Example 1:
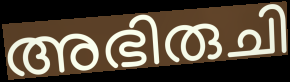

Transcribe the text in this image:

അഭിരുചി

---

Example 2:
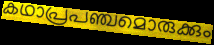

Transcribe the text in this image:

കഥാപ്രപഞ്ചമൊരുക്കും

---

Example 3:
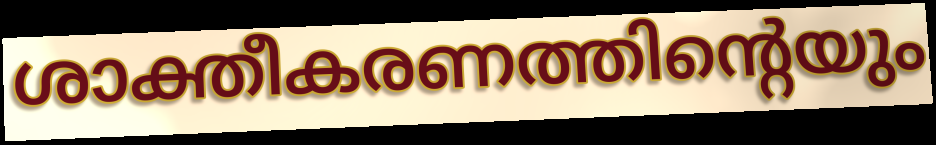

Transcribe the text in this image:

ശാക്തീകരണത്തിന്റെയും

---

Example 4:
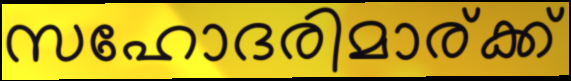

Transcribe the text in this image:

സഹോദരിമാര്ക്ക്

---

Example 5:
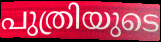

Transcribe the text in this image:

പുത്രിയുടെ